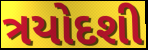
ત્રયોદશી